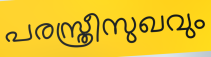
പരസ്ത്രീസുഖവും